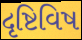
દૃષ્ટિવિષ